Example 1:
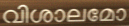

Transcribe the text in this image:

വിശാലമോ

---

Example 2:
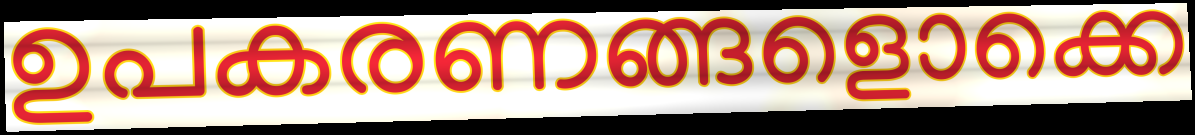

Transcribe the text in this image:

ഉപകരണങ്ങളൊക്കെ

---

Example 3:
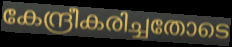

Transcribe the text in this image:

കേന്ദ്രീകരിച്ചതോടെ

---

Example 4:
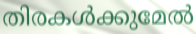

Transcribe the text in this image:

തിരകൾക്കുമേൽ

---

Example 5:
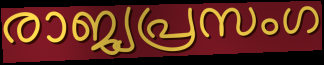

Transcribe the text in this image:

രാജ്യപ്രസംഗ